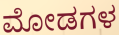
ಮೋಡಗಳ